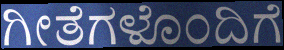
ಗೀತೆಗಳೊಂದಿಗೆ